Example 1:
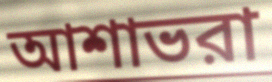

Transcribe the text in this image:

আশাভরা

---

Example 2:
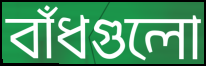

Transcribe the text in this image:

বাঁধগুলো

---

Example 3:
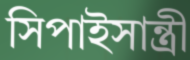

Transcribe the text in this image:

সিপাইসান্ত্রী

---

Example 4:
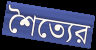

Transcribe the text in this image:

শৈত্যের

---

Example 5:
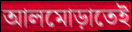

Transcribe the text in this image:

আলমোড়াতেই